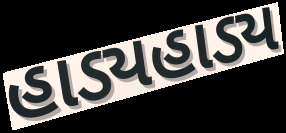
હાડ્યહાડ્ય